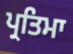
ਪ੍ਰਤਿਮਾ